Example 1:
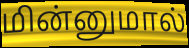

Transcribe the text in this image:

மின்னுமால்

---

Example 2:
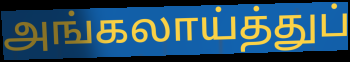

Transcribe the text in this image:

அங்கலாய்த்துப்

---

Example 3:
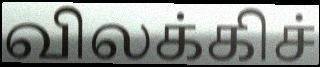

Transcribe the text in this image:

விலக்கிச்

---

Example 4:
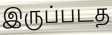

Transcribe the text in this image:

இருப்படத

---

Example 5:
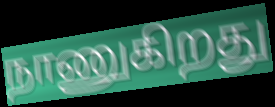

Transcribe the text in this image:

நாணுகிறது